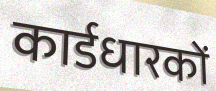
कार्डधारकों